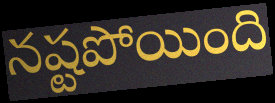
నష్టపోయింది